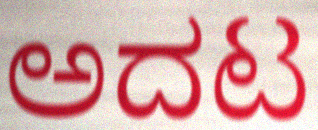
ಅದಟ